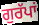
ਗੁਰੱਪਾਂ